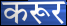
करूर